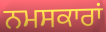
ਨਮਸਕਾਰਾਂ